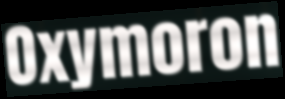
Oxymoron